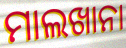
ମାଲଖାନା